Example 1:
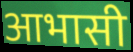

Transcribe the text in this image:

आभासी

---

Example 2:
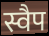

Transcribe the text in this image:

स्वैप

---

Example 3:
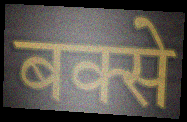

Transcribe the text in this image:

बक्से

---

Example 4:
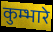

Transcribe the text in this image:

कुम्भारे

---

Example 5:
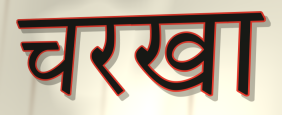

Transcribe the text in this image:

चरखा